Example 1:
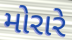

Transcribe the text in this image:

મોરારે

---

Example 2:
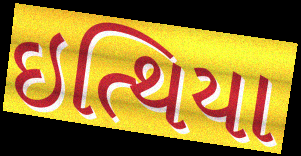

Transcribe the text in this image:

ઇત્થિયા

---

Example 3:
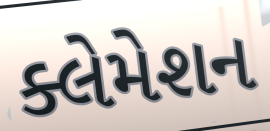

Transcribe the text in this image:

ક્લેમેશન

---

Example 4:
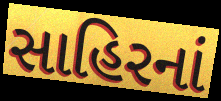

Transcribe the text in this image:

સાહિરનાં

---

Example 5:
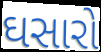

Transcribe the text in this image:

ઘસારો